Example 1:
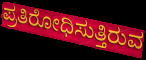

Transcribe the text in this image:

ಪ್ರತಿರೋಧಿಸುತ್ತಿರುವ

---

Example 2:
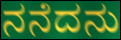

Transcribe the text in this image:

ನನೆದನು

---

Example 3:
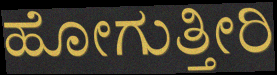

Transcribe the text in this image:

ಹೋಗುತ್ತೀರಿ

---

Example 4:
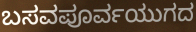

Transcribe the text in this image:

ಬಸವಪೂರ್ವಯುಗದ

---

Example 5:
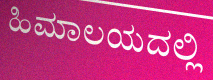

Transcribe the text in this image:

ಹಿಮಾಲಯದಲ್ಲಿ